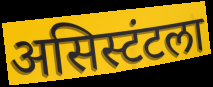
असिस्टंटला